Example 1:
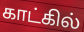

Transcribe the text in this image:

காட்கில்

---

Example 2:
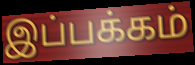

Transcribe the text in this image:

இப்பக்கம்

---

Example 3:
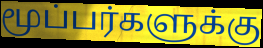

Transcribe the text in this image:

மூப்பர்களுக்கு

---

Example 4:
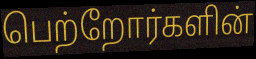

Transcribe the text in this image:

பெற்றோர்களின்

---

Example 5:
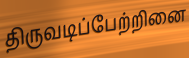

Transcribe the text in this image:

திருவடிப்பேற்றினை